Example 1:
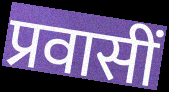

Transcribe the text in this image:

प्रवासीं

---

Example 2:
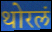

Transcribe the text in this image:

थोरलं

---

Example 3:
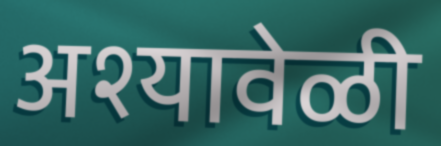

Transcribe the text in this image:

अश्यावेळी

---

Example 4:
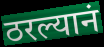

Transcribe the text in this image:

ठरल्यानं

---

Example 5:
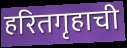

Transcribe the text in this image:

हरितगृहाची